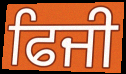
ਫਿਜੀ